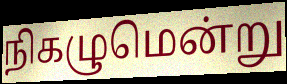
நிகழுமென்று